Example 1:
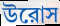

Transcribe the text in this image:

উরোস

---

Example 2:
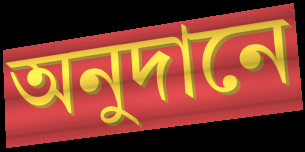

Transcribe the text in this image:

অনুদানে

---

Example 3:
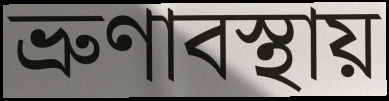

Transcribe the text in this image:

ভ্রুণাবস্থায়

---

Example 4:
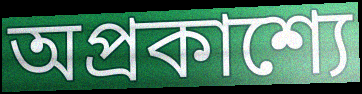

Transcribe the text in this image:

অপ্রকাশ্যে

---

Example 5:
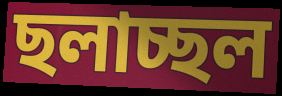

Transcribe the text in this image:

ছলাচ্ছল